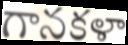
గానకళా